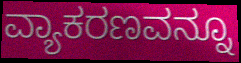
ವ್ಯಾಕರಣವನ್ನೂ